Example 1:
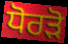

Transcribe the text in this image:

ਧੋਰੜੋ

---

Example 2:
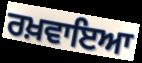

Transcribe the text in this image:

ਰਖ਼ਵਾਇਆ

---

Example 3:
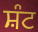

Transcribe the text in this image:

ਸ਼ੰਟ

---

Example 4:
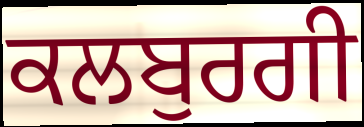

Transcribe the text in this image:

ਕਲਬੁਰਗੀ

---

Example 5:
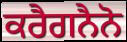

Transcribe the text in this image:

ਕਰੈਗਨੈਨੋ